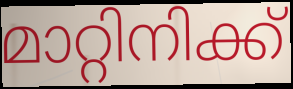
മാറ്റിനിക്ക്